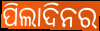
ପିଲାଦିନର